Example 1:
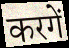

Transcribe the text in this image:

करगें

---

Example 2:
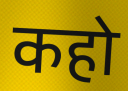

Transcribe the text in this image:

कहो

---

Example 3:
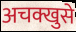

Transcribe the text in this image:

अचक्खुसे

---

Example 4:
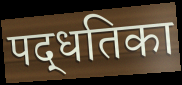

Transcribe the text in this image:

पद्धतिका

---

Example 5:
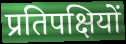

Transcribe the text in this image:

प्रतिपक्षियों